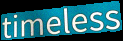
timeless